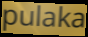
pulaka